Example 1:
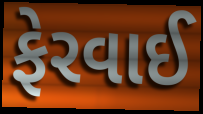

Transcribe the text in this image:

ફેરવાઈ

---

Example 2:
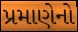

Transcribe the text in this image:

પ્રમાણેનો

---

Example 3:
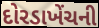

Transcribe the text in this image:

દોરડાખેંચની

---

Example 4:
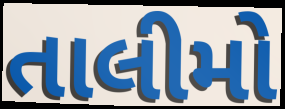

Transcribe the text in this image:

તાલીમો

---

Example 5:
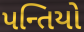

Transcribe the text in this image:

પન્તિયો